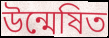
উন্মেষিত